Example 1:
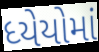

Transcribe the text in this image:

ધ્યેયોમાં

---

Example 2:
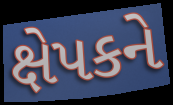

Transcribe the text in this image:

ક્ષેપકને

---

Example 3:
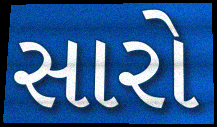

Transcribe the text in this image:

સારો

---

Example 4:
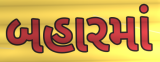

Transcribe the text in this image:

બહારમાં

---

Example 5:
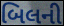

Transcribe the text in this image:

બિલની